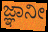
ಜ್ಞಾನೀ